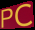
PC